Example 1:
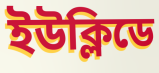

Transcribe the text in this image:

ইউক্লিডে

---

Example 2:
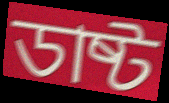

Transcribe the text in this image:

ডাষ্ট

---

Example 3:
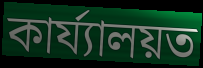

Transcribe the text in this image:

কাৰ্য্যালয়ত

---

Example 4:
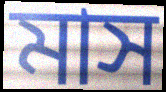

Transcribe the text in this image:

মাস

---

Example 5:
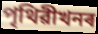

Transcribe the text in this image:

পৃথিৱীখনৰ